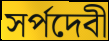
সর্পদেবী